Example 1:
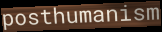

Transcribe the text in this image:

posthumanism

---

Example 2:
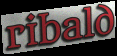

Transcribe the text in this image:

ribald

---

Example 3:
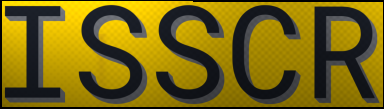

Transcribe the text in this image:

ISSCR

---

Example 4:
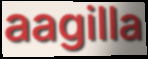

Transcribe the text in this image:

aagilla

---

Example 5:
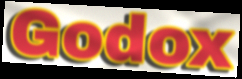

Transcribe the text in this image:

Godox